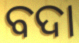
ବଦା